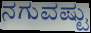
ನಗುವಷ್ಟು